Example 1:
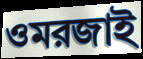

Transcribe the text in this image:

ওমরজাই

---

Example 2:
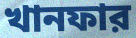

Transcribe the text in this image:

খানফার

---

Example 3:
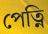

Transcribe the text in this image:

পেত্নি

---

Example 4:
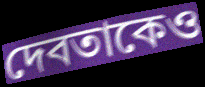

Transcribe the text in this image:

দেবতাকেও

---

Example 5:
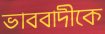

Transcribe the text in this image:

ভাববাদীকে